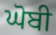
ਘੋਬੀ